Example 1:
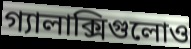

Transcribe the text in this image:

গ্যালাক্সিগুলোও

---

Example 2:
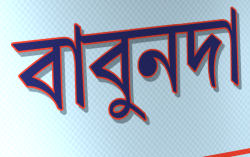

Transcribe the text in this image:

বাবুনদা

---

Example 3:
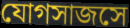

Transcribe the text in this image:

যোগসাজসে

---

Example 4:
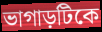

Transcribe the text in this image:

ভাগাড়টিকে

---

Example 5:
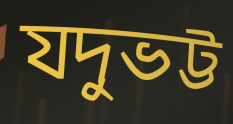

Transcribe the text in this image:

যদুভট্ট